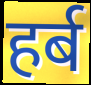
हर्ब